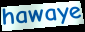
hawaye